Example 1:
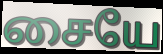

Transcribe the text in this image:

சையே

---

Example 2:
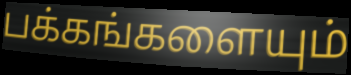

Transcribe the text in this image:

பக்கங்களையும்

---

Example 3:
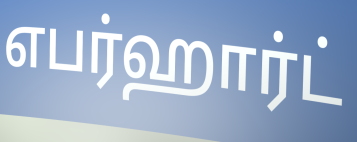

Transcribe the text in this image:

எபர்ஹார்ட்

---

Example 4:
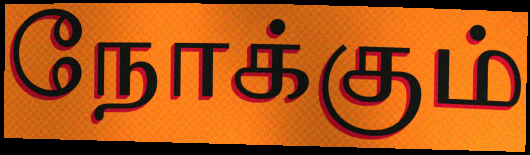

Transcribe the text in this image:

நோக்கும்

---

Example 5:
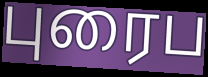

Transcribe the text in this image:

புரைப